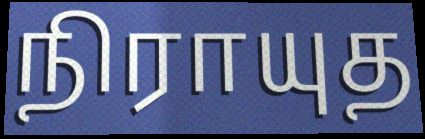
நிராயுத